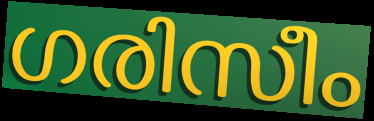
ഗരിസീം